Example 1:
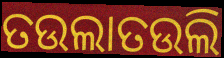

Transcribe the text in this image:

ତଉଲାତଉଲି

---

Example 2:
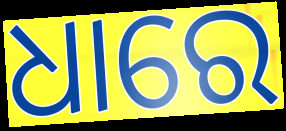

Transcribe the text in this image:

ଧାରେ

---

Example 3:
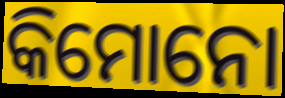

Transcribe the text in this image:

କିମୋନୋ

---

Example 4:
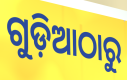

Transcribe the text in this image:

ଗୁଡ଼ିଆଠାରୁ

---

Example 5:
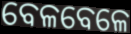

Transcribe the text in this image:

ବେଳବେଳେ